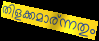
തിളക്കമാര്ന്നതും